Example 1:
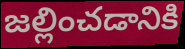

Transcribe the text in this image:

జల్లించడానికి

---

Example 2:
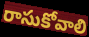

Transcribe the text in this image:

రాసుకోవాలి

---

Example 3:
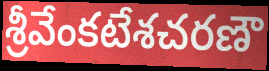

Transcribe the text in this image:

శ్రీవేంకటేశచరణౌ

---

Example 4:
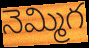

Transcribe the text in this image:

నెమ్మిగ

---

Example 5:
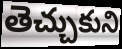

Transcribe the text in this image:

తెచ్చుకుని